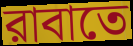
রাবাতে